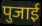
पुजाई